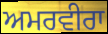
ਅਮਰਵੀਰਾ